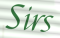
Sirs